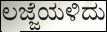
ಲಜ್ಜೆಯಳಿದು